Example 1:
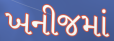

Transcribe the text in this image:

ખનીજમાં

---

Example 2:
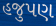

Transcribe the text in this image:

હજુપણ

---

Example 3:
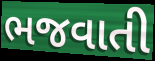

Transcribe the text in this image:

ભજવાતી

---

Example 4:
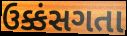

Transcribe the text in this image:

ઉક્કંસગતા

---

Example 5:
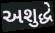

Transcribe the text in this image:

અશુદ્ધે